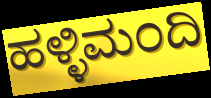
ಹಳ್ಳಿಮಂದಿ